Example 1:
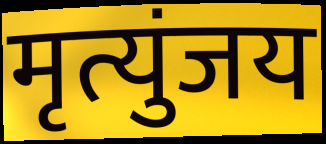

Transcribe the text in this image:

मृत्युंजय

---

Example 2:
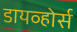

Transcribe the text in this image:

डायव्होर्स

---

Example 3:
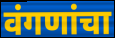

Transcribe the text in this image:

वंगणांचा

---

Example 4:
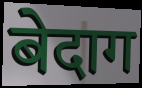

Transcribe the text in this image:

बेदाग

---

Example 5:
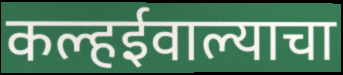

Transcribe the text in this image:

कल्हईवाल्याचा